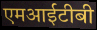
एमआईटीबी